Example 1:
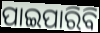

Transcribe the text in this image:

ପାଇପାରିବି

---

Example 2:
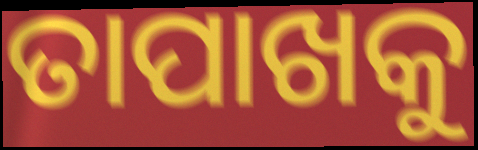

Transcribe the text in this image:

ତାପାଖକୁ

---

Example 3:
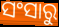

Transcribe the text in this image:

ସଂସାରୁ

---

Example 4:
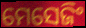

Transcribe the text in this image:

ମେସେଜିଂ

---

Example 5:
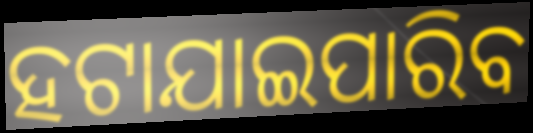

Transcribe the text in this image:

ହଟାଯାଇପାରିବ